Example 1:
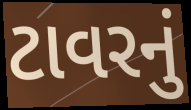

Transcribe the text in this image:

ટાવરનું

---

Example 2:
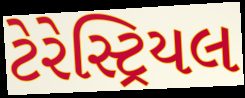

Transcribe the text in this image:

ટેરેસ્ટ્રિયલ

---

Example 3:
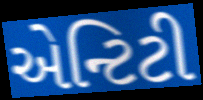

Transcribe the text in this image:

એન્ટિટી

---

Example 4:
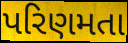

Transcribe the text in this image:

પરિણમતા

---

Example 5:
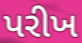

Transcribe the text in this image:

પરીખ